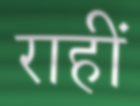
राहीं